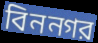
বিননগর